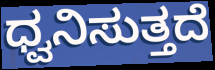
ಧ್ವನಿಸುತ್ತದೆ